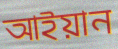
আইয়ান